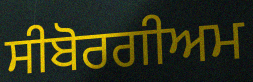
ਸੀਬੋਰਗੀਅਮ